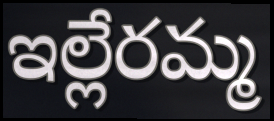
ఇల్లేరమ్మ